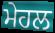
ਮੇਹਲ